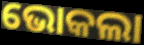
ଭୋକଲା